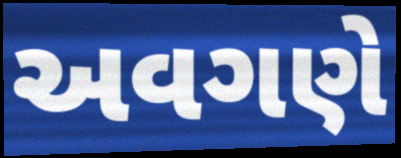
અવગણે